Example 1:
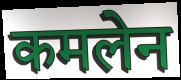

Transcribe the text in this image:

कमलेन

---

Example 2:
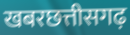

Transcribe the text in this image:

खबरछत्तीसगढ़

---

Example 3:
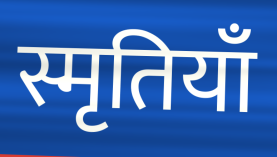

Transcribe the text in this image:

स्मृतियाँ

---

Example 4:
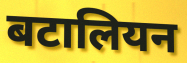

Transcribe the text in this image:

बटालियन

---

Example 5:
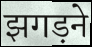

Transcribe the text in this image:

झगड़ने